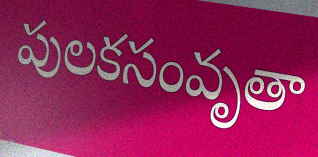
పులకసంవృతా